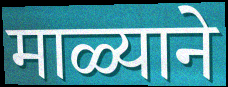
माळ्याने